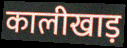
कालीखाड़